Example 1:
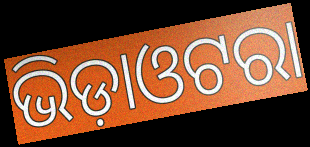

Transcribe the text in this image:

ଭିଡ଼ାଓଟରା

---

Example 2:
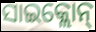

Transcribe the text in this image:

ସାଇକ୍ଲୋନ୍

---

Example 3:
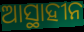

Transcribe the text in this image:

ଆସ୍ଥାହୀନ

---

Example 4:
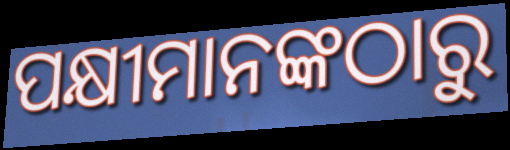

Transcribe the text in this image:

ପକ୍ଷୀମାନଙ୍କଠାରୁ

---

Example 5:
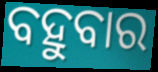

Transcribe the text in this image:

ବହୁବାର